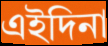
এইদিনা